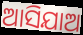
ଆସିଯାଅ